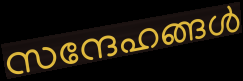
സന്ദേഹങ്ങൾ